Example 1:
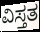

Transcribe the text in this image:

ವಿಸ್ತತ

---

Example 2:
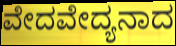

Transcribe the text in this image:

ವೇದವೇದ್ಯನಾದ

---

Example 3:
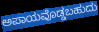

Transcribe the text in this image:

ಅಪಾಯವೊಡ್ಡಬಹುದು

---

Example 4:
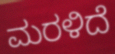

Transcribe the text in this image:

ಮರಳಿದೆ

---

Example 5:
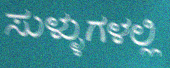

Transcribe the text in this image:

ಸುಳ್ಳುಗಳಲ್ಲಿ